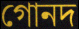
গোনদ